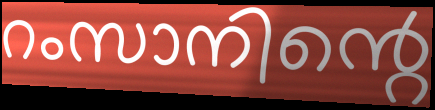
റംസാനിന്റെ